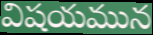
విషయమున